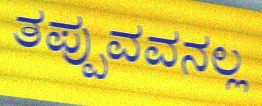
ತಪ್ಪುವವನಲ್ಲ